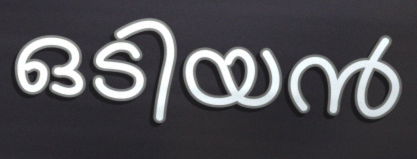
ഒടിയൻ